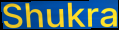
Shukra